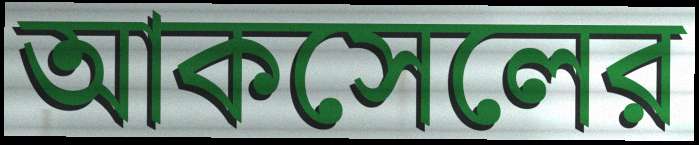
আকসেলের